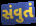
સંવુતં